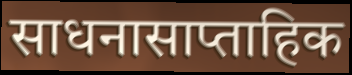
साधनासाप्ताहिक